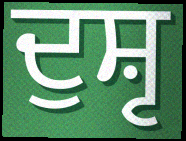
ਦੁਸ਼੍ਟ